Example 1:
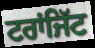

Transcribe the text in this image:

ਟਰਾਂਜਿੱਟ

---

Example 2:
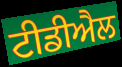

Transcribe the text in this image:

ਟੀਡੀਐਲ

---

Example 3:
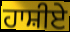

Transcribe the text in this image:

ਹਾਸ਼ੀਏ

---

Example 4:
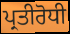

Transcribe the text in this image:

ਪ੍ਰਤੀਰੋਧੀ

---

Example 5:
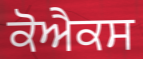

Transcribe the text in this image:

ਕੋਐਕਸ